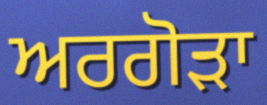
ਅਰਗੋੜਾ